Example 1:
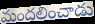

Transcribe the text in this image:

మందలించాడు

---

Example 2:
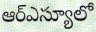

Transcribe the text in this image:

ఆర్ఎస్యూలో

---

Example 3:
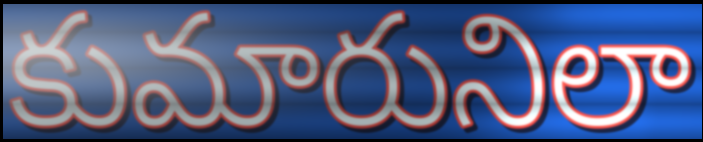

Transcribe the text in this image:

కుమారునిలా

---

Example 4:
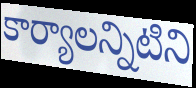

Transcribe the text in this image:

కార్యాలన్నిటిని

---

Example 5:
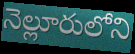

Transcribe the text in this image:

నెల్లూరులోని